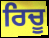
ਰਿਚੂ